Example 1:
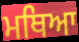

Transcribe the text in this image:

ਮਥਿਆ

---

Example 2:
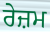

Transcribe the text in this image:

ਰੇਜ਼ਮ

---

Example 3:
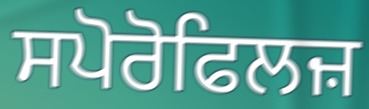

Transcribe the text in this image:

ਸਪੋਰੋਫਿਲਜ਼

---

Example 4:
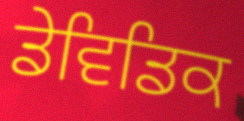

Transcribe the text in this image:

ਡੇਵਿਡਿਕ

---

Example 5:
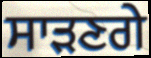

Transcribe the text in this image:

ਸਾੜਣਗੇ